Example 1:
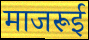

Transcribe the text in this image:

माजरूई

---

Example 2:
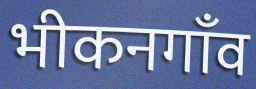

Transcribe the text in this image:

भीकनगाँव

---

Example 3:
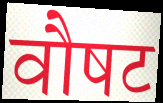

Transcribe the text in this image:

वौषट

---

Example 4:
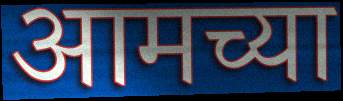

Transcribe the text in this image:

आमच्या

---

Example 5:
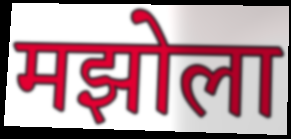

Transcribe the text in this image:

मझोला